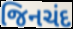
જિનચંદ